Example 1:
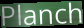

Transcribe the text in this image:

Planch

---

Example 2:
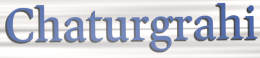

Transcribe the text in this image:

Chaturgrahi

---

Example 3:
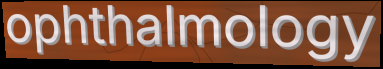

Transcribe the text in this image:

ophthalmology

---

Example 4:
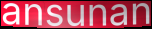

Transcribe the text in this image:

ansunan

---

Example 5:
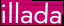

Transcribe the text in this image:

illada